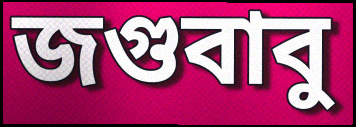
জগুবাবু